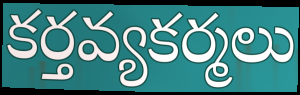
కర్తవ్యకర్మలు